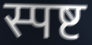
स्पष्ट